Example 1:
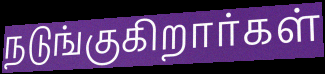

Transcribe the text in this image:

நடுங்குகிறார்கள்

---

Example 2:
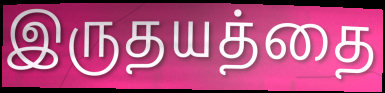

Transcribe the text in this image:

இருதயத்தை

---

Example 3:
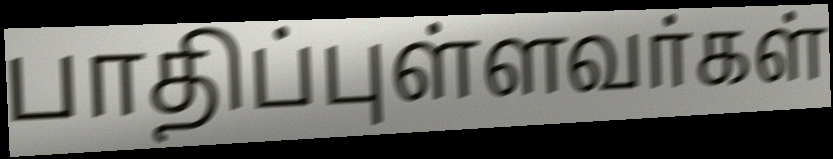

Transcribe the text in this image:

பாதிப்புள்ளவர்கள்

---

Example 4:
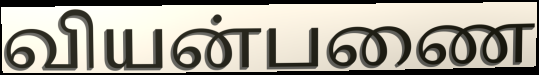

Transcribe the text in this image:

வியன்பணை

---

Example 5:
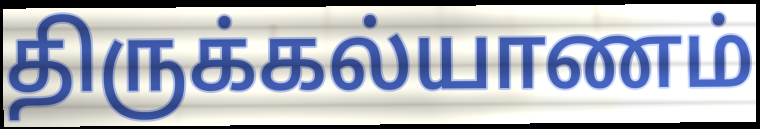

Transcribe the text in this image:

திருக்கல்யாணம்